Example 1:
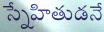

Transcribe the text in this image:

స్నేహితుడనే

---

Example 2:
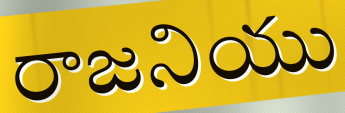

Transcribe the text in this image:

రాజనియు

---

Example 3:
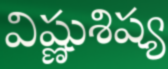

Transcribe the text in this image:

విష్ణుశిష్య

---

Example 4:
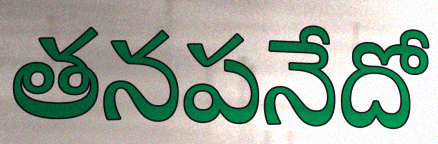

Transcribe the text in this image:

తనపనేదో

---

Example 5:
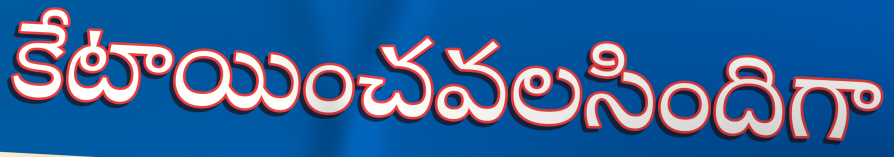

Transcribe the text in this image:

కేటాయించవలసిందిగా